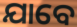
ଯାବେ